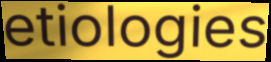
etiologies